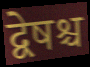
द्वेषश्च